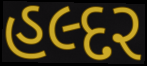
હલ્દર